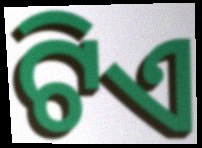
ଟିଏ